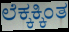
ಲೆಕ್ಕಕ್ಕಿಂತ